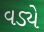
વડ્યે